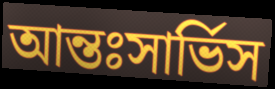
আন্তঃসার্ভিস